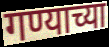
गण्याच्या